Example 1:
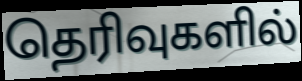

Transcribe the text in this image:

தெரிவுகளில்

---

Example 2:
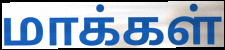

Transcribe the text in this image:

மாக்கள்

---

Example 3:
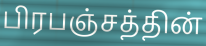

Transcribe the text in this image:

பிரபஞ்சத்தின்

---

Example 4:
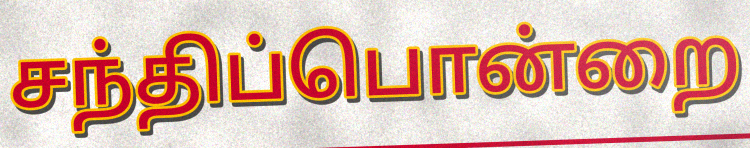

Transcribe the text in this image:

சந்திப்பொன்றை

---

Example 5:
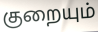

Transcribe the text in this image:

குறையும்